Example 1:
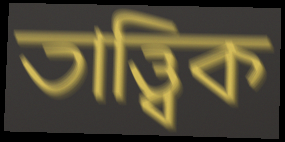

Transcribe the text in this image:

তাত্ত্বিক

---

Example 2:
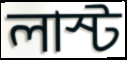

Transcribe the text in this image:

লাস্ট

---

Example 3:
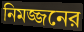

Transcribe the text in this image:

নিমজ্জনের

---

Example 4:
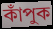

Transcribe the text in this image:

কাঁপুক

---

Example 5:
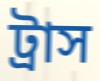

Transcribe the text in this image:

ট্রাস